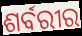
ଶର୍ବରୀର